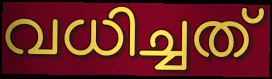
വധിച്ചത്